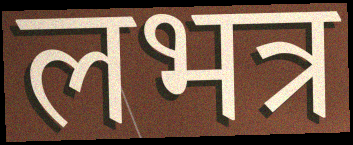
लभत्र